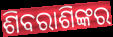
ଶିବରାଶିଙ୍କର